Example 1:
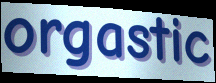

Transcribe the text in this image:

orgastic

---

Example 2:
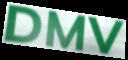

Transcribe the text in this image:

DMV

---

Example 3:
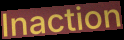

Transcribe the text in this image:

Inaction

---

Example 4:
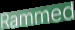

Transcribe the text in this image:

Rammed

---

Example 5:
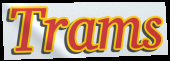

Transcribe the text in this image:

Trams